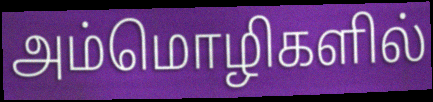
அம்மொழிகளில்